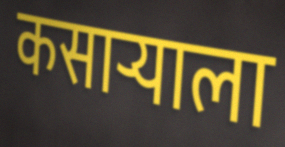
कसाऱ्याला